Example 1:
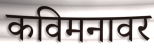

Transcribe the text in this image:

कविमनावर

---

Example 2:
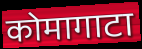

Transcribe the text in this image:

कोमागाटा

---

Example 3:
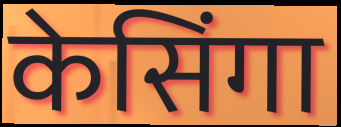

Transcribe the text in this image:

केसिंगा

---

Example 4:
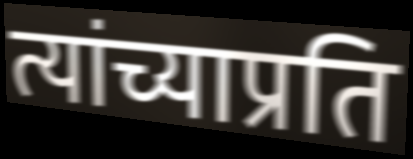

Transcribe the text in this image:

त्यांच्याप्रति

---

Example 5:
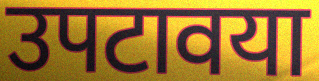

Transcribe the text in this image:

उपटावया